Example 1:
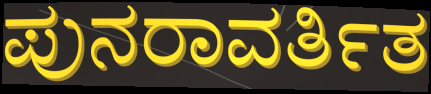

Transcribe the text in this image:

ಪುನರಾವರ್ತಿತ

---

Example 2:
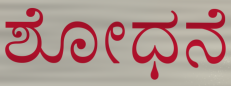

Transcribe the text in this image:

ಶೋಧನೆ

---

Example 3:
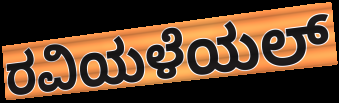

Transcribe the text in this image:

ರವಿಯಳೆಯಲ್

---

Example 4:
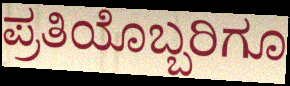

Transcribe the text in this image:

ಪ್ರತಿಯೊಬ್ಬರಿಗೂ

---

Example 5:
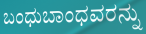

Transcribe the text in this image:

ಬಂಧುಬಾಂಧವರನ್ನು